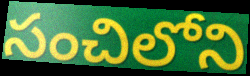
సంచిలోని